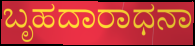
ಬೃಹದಾರಾಧನಾ